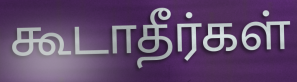
கூடாதீர்கள்